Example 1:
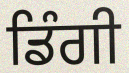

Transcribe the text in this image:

ਡਿੰਗੀ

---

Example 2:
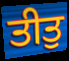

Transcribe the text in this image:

ਤੀਤੁ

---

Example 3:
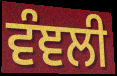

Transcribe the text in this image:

ਵੰਞਲੀ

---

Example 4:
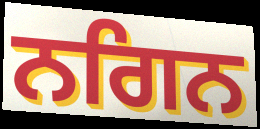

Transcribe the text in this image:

ਨਗਿਨ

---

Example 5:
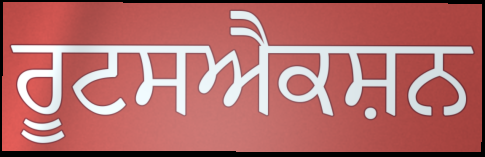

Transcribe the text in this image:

ਰੂਟਸਐਕਸ਼ਨ